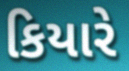
કિયારે